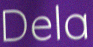
Dela